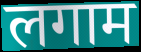
लगाम